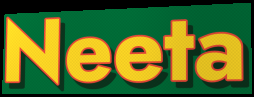
Neeta